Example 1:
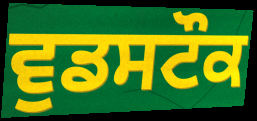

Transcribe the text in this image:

ਵੁਡਸਟੌਕ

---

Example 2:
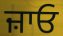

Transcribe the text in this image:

ਜ਼ਾਓ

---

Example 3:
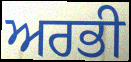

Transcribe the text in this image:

ਅਰਭੀ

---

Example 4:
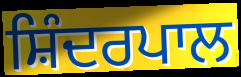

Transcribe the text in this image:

ਸ਼ਿੰਦਰਪਾਲ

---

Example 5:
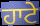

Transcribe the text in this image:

ਹਾਟੇ